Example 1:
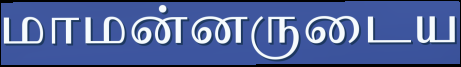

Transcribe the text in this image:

மாமன்னருடைய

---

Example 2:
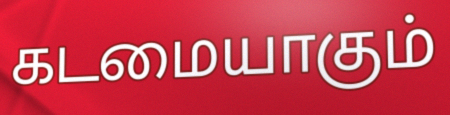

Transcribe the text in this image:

கடமையாகும்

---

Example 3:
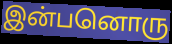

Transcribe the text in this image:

இன்பனொரு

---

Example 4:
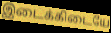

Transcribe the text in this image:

இடைக்கிடையே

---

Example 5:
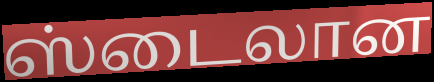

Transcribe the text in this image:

ஸ்டைலான